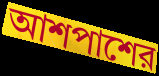
আশপাশের